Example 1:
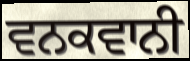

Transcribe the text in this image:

ਵਨਕਵਾਨੀ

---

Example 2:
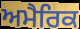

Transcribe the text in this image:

ਅਮੈਰਿਕ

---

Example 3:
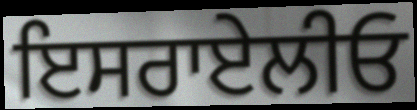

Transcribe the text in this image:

ਇਸਰਾਏਲੀਓ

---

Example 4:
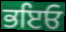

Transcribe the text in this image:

ਭਇਓ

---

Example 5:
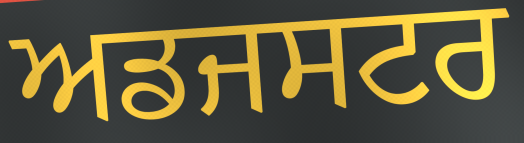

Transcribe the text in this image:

ਅਡਜਸਟਰ